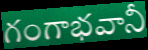
గంగాభవానీ